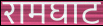
रामघाट